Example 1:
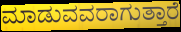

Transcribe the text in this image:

ಮಾಡುವವರಾಗುತ್ತಾರೆ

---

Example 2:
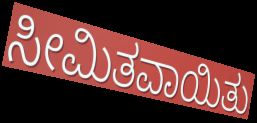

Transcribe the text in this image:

ಸೀಮಿತವಾಯಿತು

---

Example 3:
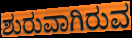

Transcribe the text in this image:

ಶುರುವಾಗಿರುವ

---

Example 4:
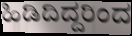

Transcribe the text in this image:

ಹಿಡಿದಿದ್ದರಿಂದ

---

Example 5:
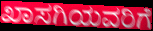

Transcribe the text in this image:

ಖಾಸಗಿಯವರಿಗೆ